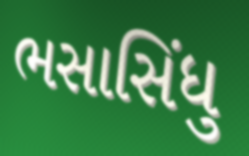
ભસાસિંધુ